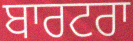
ਬਾਰਟਰਾ